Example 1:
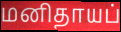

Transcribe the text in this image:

மனிதாயப்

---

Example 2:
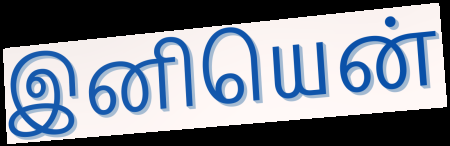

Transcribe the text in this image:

இனியென்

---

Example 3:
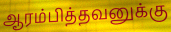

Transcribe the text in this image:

ஆரம்பித்தவனுக்கு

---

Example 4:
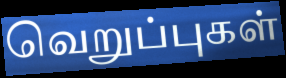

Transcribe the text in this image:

வெறுப்புகள்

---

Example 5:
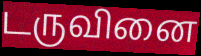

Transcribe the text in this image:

டருவினை